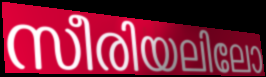
സീരിയലിലോ